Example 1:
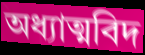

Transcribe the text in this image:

অধ্যাত্মবিদ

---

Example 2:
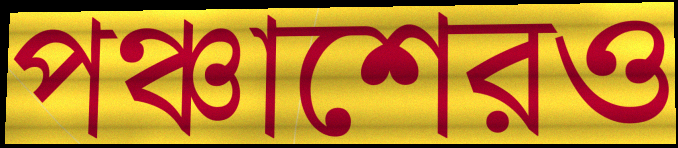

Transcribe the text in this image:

পঞ্চাশেরও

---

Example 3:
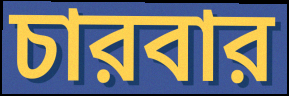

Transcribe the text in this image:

চারবার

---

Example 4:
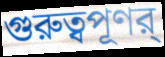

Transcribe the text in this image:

গুরুত্বপূণর্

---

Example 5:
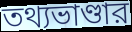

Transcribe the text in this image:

তথ্যভাণ্ডার